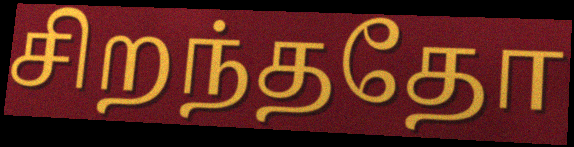
சிறந்ததோ